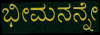
ಭೀಮನನ್ನೇ